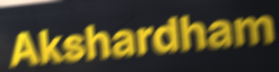
Akshardham